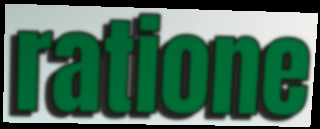
ratione